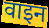
वाइन